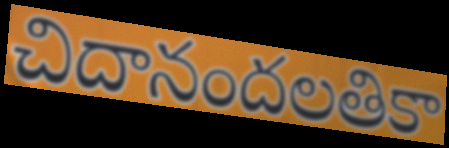
చిదానందలతికా